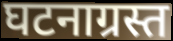
घटनाग्रस्त